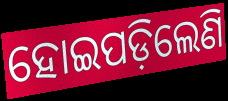
ହୋଇପଡ଼ିଲେଣି